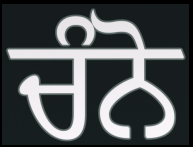
ਚੰਨੋ